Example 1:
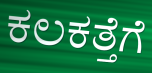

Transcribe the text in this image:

ಕಲಕತ್ತೆಗೆ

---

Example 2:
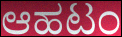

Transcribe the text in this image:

ಆಹಟಂ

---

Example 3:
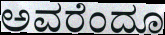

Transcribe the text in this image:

ಅವರೆಂದೂ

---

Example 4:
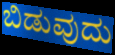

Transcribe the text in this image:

ಬಿಡುವುದು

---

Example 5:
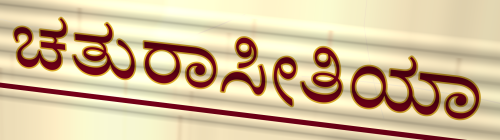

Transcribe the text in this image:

ಚತುರಾಸೀತಿಯಾ